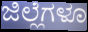
ಜಿಲ್ಲೆಗಳೂ